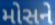
મોસને